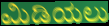
ಮಿಡಿಯಲು